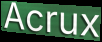
Acrux